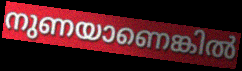
നുണയാണെങ്കിൽ